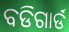
ବଡିଗାର୍ଡ